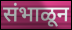
संभाळून